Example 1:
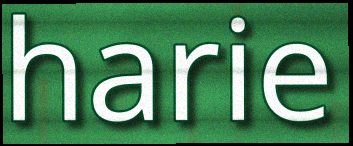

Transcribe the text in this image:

harie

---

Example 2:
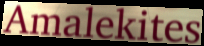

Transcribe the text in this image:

Amalekites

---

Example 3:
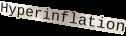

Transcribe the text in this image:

Hyperinflation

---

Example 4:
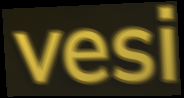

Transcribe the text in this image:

vesi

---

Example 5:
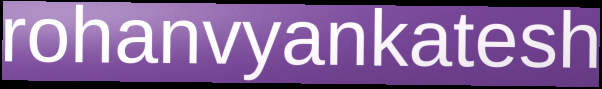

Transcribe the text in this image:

rohanvyankatesh